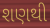
શણથી